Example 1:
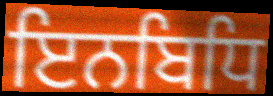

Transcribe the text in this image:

ਇਨਬਿਧਿ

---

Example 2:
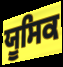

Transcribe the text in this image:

ਯੂਸਿਕ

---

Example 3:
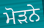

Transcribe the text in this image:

ਮੋੜਨੇ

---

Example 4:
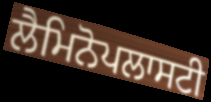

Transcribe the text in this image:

ਲੈਮਿਨੋਪਲਾਸਟੀ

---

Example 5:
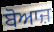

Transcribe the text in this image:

ਬੋਆਜ਼